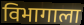
विभागाला